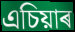
এচিয়াৰ